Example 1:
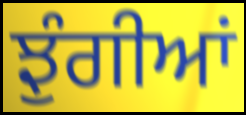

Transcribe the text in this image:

ਝੁੰਗੀਆਂ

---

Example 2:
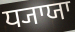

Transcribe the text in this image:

ਧ੍ਯਾਯਾ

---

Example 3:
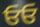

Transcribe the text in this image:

ਓਓ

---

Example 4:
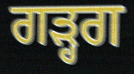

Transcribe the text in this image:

ਗੜ੍ਹਗ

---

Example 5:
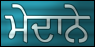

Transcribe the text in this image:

ਮੇਦਾਨੇ